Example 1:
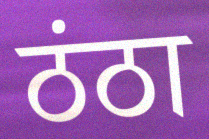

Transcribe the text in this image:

ठंठा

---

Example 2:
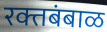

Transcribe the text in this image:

रक्तबंबाळ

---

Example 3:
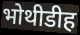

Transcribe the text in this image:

भोथीडीह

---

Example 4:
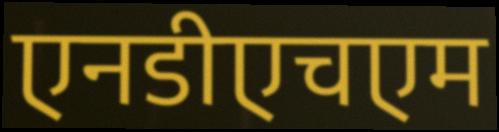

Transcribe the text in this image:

एनडीएचएम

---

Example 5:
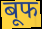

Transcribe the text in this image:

बूफ